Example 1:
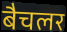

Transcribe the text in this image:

बैचलर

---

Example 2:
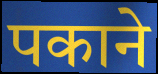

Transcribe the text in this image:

पकाने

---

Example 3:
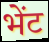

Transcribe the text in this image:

भेंट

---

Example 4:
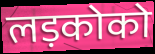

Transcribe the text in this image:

लड़कोको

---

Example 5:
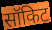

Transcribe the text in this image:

सॉकिट